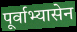
पूर्वाभ्यासेन